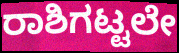
ರಾಶಿಗಟ್ಟಲೇ